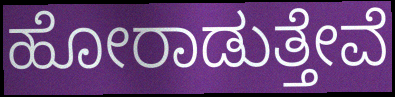
ಹೋರಾಡುತ್ತೇವೆ